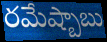
రమేష్బాబు